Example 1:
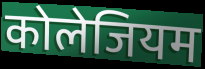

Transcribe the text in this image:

कोलेजियम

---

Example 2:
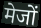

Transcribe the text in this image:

मेजों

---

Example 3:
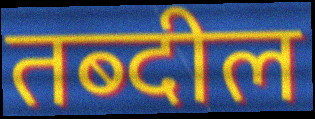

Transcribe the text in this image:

तब्‍दील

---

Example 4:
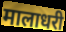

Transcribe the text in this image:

मालाधरी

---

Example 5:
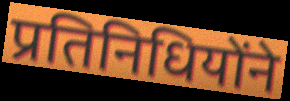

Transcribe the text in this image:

प्रतिनिधियोंने